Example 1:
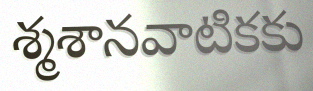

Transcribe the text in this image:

శ్మశానవాటికకు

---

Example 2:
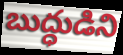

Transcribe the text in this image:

బుద్ధుడిని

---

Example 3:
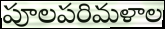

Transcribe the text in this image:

పూలపరిమళాల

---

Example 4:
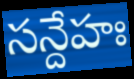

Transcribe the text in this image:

సన్దేహః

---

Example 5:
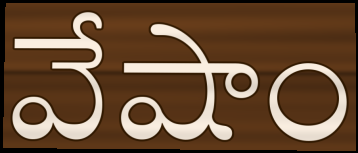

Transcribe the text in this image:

వేషాం